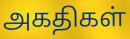
அகதிகள்